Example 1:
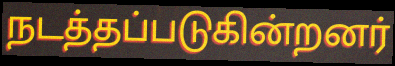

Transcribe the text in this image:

நடத்தப்படுகின்றனர்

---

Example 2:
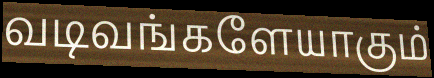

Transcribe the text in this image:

வடிவங்களேயாகும்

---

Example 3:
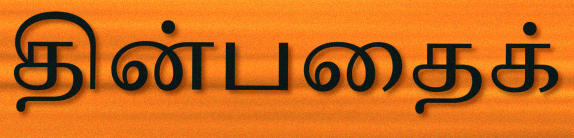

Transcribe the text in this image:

தின்பதைக்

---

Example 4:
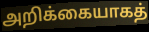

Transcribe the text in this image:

அறிக்கையாகத்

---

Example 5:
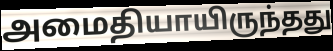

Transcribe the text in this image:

அமைதியாயிருந்தது